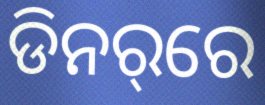
ଡିନର୍‌ରେ